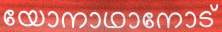
യോനാഥാനോട്